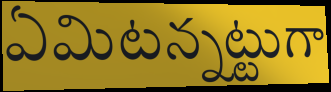
ఏమిటన్నట్టుగా